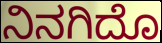
ನಿನಗಿದೊ